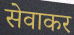
सेवाकर